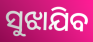
ସୁଝାଯିବ